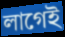
লাগেই